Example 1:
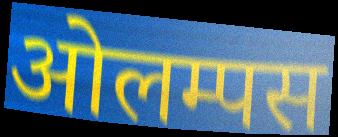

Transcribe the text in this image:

ओलम्पस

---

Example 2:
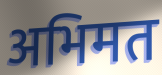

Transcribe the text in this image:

अभिमत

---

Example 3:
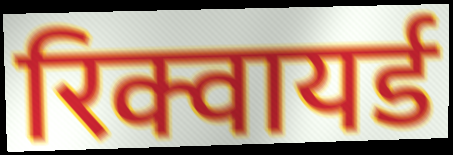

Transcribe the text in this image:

रिक्वायर्ड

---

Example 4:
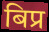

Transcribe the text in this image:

बिप्र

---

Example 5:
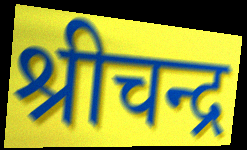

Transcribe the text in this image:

श्रीचन्द्र